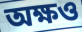
অক্ষও